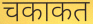
चकाकत